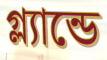
গ্ল্যান্ডে